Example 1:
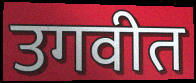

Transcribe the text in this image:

उगवीत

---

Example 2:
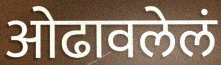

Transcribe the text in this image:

ओढावलेलं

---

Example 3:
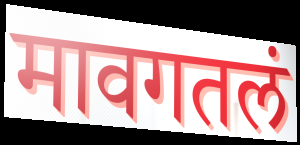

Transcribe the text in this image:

मावगतलं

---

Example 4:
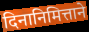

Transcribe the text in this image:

दिनानिमित्ताने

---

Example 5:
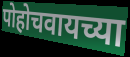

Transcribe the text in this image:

पोहोचवायच्या